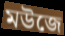
মউজে